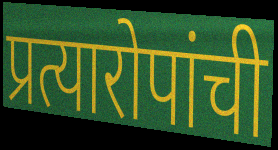
प्रत्यारोपांची